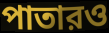
পাতারও